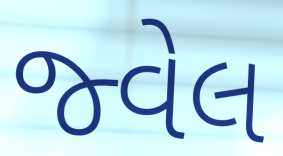
જ્વેલ